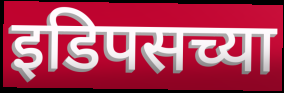
इडिपसच्या